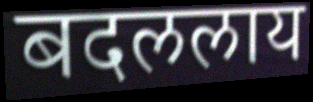
बदललाय